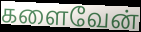
களைவேன்